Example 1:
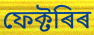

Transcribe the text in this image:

ফেক্টৰিৰ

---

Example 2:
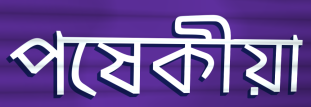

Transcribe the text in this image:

পষেকীয়া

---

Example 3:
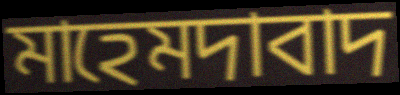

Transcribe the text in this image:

মাহেমদাবাদ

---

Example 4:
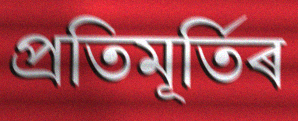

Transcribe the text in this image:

প্ৰতিমূৰ্তিৰ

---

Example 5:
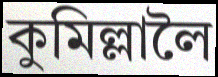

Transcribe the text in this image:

কুমিল্লালৈ